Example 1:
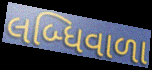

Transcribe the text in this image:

લબ્ધિવાળા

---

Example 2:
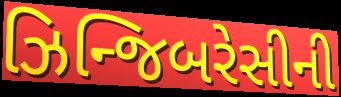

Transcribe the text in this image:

ઝિન્જિબરેસીની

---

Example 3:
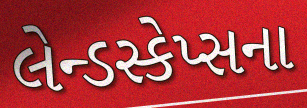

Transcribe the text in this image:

લેન્ડસ્કેપ્સના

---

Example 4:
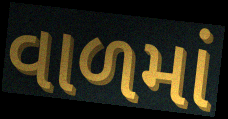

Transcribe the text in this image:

વાળમાં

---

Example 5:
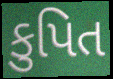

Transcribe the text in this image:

કુપિત